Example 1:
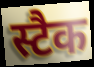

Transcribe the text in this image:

स्टैक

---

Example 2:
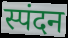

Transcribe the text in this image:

स्पंदन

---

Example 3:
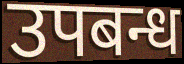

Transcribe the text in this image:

उपबन्ध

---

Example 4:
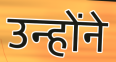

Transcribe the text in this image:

उन्होंने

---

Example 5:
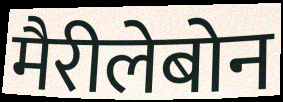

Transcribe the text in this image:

मैरीलेबोन